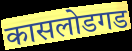
कासलोडगड